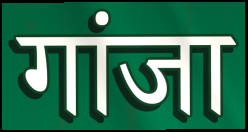
गांजा